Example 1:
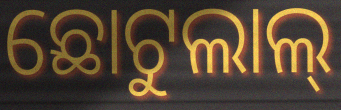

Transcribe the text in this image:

ଛୋଟୁଲାଲ୍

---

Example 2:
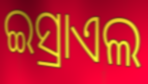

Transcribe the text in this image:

ଇସ୍ରାଏଲ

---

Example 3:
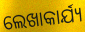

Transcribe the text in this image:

ଲେଖାକାର୍ଯ୍ୟ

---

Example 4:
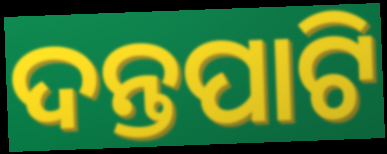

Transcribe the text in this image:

ଦନ୍ତପାଟି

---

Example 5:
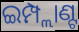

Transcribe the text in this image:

ଇମ୍ପ୍ଲାଣ୍ଟ